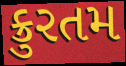
ક્રુરતમ